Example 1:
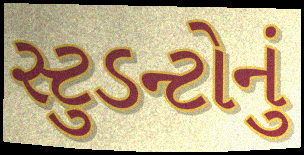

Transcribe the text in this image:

સ્ટુડન્ટોનું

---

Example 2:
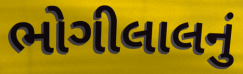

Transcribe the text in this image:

ભોગીલાલનું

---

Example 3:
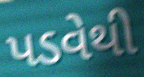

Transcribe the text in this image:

પડવેથી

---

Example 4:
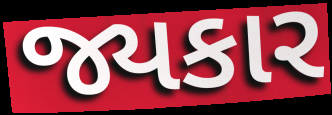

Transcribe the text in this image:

જ્યકાર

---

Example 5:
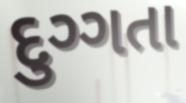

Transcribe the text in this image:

દુગ્ગતા